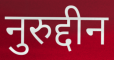
नुरुद्दीन